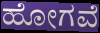
ಹೋಗವೆ